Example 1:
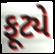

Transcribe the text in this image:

ફૂટ્યે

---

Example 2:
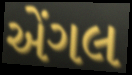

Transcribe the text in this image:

એંગલ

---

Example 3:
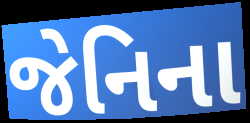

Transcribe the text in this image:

જેનિના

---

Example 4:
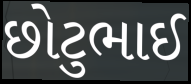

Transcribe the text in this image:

છોટુભાઈ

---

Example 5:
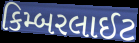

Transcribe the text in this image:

કિમ્બરલાઈટ